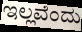
ಇಲ್ಲವೆಂದು